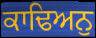
ਕਾਢਿਅਨੁ